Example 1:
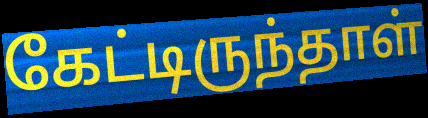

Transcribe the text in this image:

கேட்டிருந்தாள்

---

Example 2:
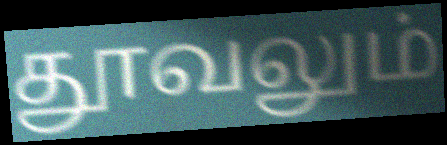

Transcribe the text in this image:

தூவலும்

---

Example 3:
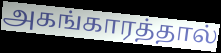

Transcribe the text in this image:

அகங்காரத்தால்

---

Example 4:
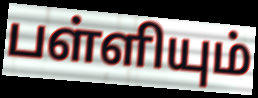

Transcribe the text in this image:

பள்ளியும்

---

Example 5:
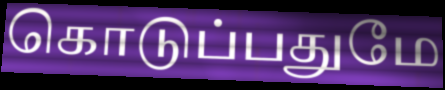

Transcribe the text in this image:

கொடுப்பதுமே